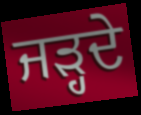
ਜੜ੍ਹਦੇ